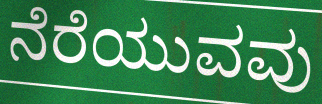
ನೆರೆಯುವವು